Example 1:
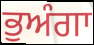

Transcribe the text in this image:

ਭੁਅੰਗਾ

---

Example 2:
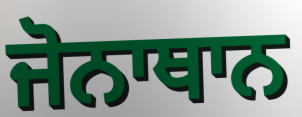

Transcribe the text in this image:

ਜੋਨਾਥਾਨ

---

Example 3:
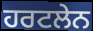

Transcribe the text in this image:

ਹਰਟਲੇਨ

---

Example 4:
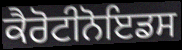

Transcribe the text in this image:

ਕੈਰੋਟੀਨੋਇਡਸ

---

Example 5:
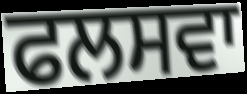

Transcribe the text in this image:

ਫਲਸਵਾ